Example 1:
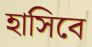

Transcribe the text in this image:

হাসিবে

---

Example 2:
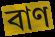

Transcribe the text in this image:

বাণ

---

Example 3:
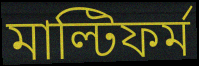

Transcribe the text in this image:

মাল্টিফর্ম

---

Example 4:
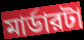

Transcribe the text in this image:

মার্ডারটা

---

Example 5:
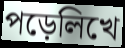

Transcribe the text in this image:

পড়েলিখে